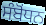
ਸੰਬੋੰਧਨ